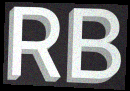
RB